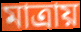
মাত্রায়